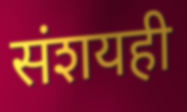
संशयही